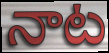
నాట